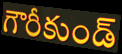
గౌరీకుండ్